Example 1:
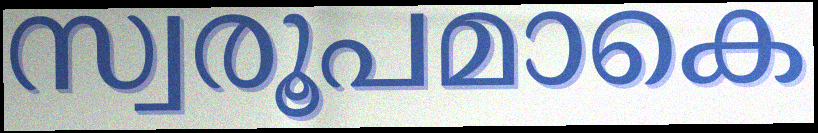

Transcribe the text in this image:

സ്വരൂപമാകെ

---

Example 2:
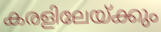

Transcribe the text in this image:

കരളിലേയ്ക്കും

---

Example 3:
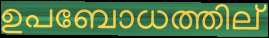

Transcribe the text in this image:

ഉപബോധത്തില്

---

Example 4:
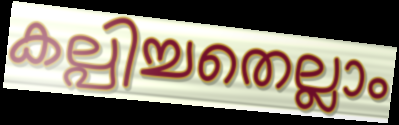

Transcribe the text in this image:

കല്പിച്ചതെല്ലാം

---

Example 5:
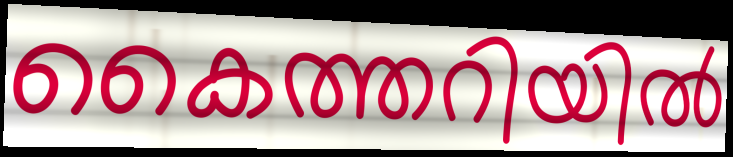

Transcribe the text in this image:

കൈത്തറിയിൽ